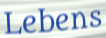
Lebens